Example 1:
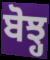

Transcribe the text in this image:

ਬੋਝ੍ਹ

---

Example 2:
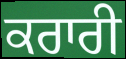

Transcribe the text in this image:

ਕਰਾਰੀ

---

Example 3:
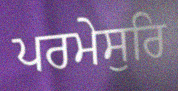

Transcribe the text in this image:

ਪਰਮੇਸੁਰਿ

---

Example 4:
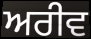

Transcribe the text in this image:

ਅਰੀਵ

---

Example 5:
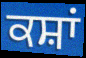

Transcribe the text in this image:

ਕਸ਼ਾਂ